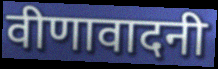
वीणावादनी